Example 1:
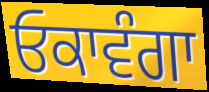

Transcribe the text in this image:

ਓਕਾਵੰਗਾ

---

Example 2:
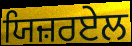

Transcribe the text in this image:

ਯਿਜ਼ਰਏਲ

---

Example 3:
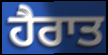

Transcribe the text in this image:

ਹੈਰਾਤ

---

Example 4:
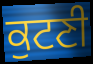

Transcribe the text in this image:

ਕੁਟਣੀ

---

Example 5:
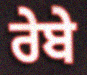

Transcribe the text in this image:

ਰੇਬੇ